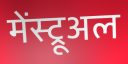
मेंस्ट्रूअल